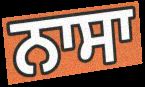
ਨਾਸਾ